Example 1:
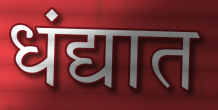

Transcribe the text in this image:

धंद्यात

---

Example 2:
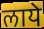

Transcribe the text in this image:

लाये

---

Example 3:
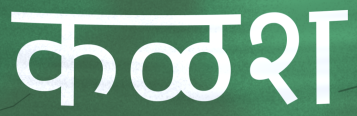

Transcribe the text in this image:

कळश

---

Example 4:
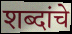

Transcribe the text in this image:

शब्दांचे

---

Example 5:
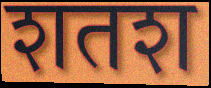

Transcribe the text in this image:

शतश